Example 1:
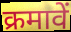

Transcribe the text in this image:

क्रमावें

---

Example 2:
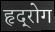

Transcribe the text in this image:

हृद्‍रोग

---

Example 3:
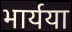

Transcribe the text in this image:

भार्यया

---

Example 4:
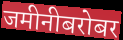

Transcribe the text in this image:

जमीनीबरोबर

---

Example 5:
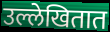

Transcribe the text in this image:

उल्लेखितात